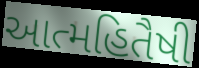
આત્મહિતૈષી